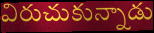
విరుచుకున్నాడు